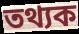
তথ্যক